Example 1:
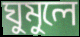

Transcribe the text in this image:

ঘুমুলে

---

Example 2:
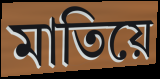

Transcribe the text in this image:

মাতিয়ে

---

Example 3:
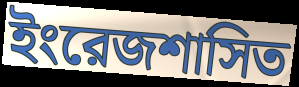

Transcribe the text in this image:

ইংরেজশাসিত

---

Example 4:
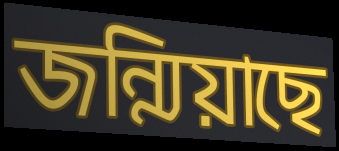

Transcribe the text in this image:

জন্মিয়াছে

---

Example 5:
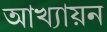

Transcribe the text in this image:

আখ্যায়ন